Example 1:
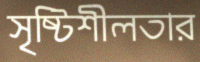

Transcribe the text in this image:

সৃষ্টিশীলতার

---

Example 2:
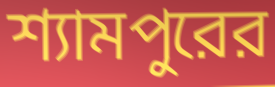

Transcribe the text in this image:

শ্যামপুরের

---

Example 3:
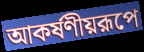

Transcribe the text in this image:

আকর্ষণীয়রূপে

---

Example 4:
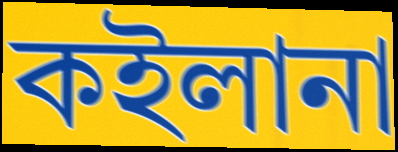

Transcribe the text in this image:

কইলানা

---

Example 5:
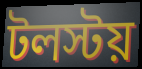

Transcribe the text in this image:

টলস্টয়